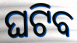
ଘଟିବ